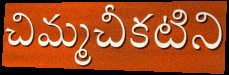
చిమ్మచీకటిని